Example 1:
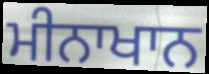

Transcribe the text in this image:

ਮੀਨਾਖਾਨ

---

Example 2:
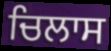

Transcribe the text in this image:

ਚਿਲਾਸ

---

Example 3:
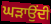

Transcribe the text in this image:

ਘੜਾਉਂਦੀ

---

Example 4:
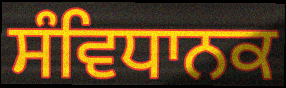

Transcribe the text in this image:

ਸੰਵਿਧਾਨਕ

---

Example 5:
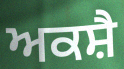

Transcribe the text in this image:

ਅਕਸ਼ੈ